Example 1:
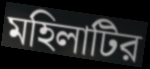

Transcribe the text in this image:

মহিলাটির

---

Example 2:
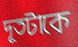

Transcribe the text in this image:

দূতটাকে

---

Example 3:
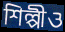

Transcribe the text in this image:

শিল্পীও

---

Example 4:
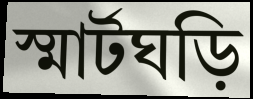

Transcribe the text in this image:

স্মার্টঘড়ি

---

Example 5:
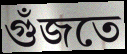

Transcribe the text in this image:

গুঁজতে